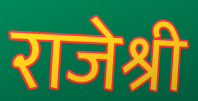
राजेश्री